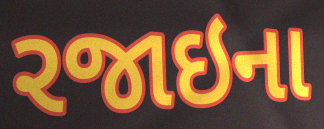
રજાઇના